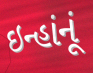
ઇન્હાંનૂં